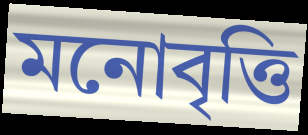
মনোবৃত্তি